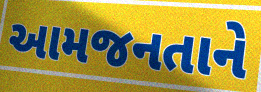
આમજનતાને